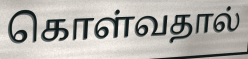
கொள்வதால்